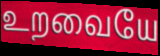
உறவையே